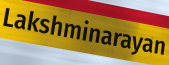
Lakshminarayan